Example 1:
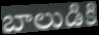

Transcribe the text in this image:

బాలుడికి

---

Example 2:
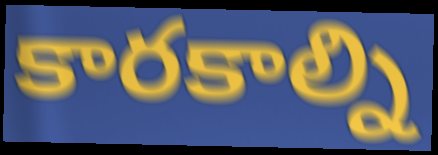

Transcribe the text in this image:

కారకాల్ని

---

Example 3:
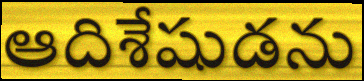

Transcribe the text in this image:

ఆదిశేషుడను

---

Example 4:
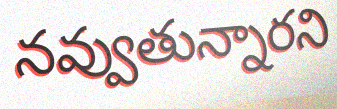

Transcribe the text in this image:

నవ్వుతున్నారని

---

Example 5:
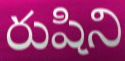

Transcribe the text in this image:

రుషిని